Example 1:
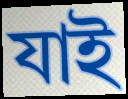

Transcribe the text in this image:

যাই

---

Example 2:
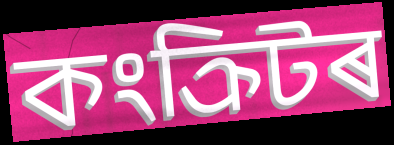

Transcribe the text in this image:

কংক্ৰিটৰ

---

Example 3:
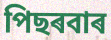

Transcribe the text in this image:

পিছৰবাৰ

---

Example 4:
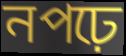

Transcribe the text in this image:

নপঢ়ে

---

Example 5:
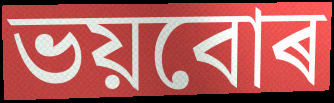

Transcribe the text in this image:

ভয়বোৰ